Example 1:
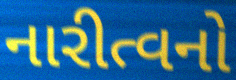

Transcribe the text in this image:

નારીત્વનો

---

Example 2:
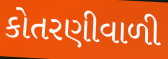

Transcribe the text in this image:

કોતરણીવાળી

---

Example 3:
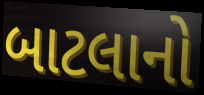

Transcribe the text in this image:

બાટલાનો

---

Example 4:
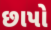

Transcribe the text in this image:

છાપો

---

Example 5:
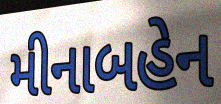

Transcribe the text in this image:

મીનાબહેન